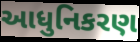
આધુનિકરણ